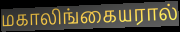
மகாலிங்கையரால்